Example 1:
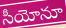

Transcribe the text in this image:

సీయోనూ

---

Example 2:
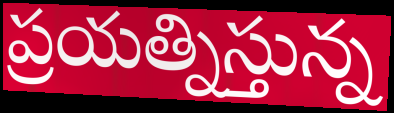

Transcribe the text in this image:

ప్రయత్నిస్తున్న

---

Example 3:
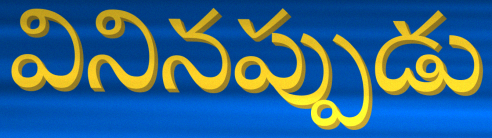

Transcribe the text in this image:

వినినప్పుడు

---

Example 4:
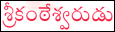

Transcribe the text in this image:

శ్రీకంఠేశ్వరుడు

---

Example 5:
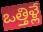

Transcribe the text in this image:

ఒత్తిళ్లే